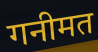
गनीमत